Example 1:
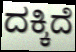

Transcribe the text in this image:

ದಕ್ಕಿದೆ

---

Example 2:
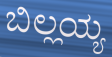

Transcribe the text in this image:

ಬಿಲ್ಲಯ್ಯ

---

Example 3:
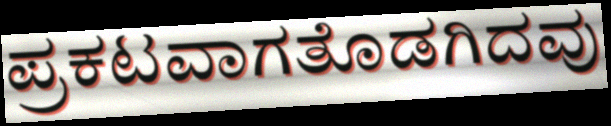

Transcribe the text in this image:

ಪ್ರಕಟವಾಗತೊಡಗಿದವು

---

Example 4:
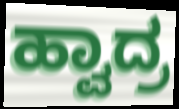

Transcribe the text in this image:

ಹ್ವಾದ್ರ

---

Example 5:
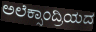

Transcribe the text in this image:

ಅಲೆಕ್ಸಾಂದ್ರಿಯದ